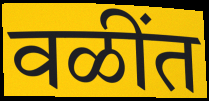
वळींत